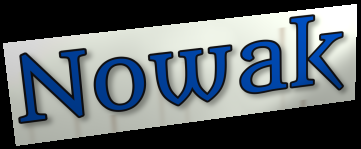
Nowak